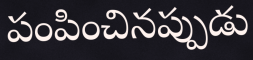
పంపించినప్పుడు